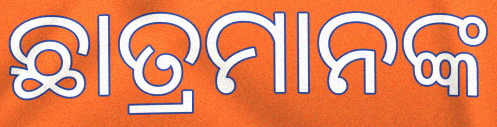
ଛାତ୍ରମାନଙ୍କ